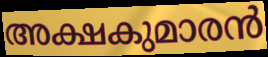
അക്ഷകുമാരൻ